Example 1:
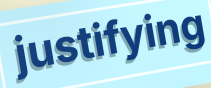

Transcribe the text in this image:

justifying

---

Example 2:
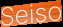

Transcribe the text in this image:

Seiso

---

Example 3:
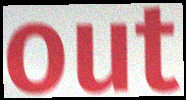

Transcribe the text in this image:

out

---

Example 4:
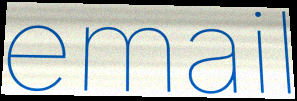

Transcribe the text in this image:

email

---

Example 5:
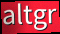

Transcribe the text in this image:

altgr